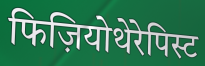
फिज़ियोथेरेपिस्ट